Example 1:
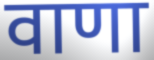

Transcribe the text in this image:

वाणा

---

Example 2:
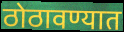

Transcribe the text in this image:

ठोठावण्यात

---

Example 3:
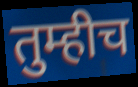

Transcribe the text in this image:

तुम्हीच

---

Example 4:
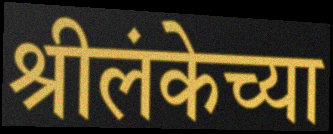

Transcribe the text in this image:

श्रीलंकेच्या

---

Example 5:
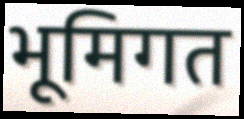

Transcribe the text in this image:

भूमिगत